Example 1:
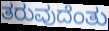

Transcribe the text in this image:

ತರುವುದೆಂತು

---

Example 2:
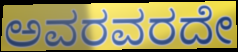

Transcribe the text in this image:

ಅವರವರದೇ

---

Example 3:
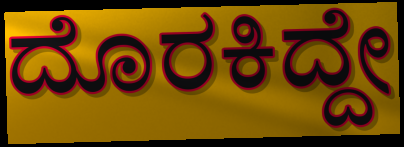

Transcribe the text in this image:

ದೊರಕಿದ್ದೇ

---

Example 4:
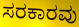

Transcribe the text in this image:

ಸರಕಾರವು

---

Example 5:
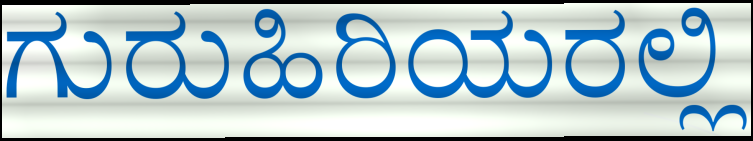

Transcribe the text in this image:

ಗುರುಹಿರಿಯರಲ್ಲಿ